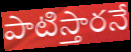
పాటిస్తారనే